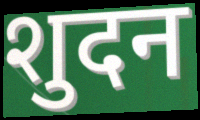
शुदन